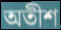
অতীশ